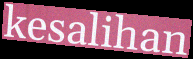
kesalihan